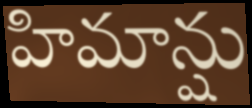
హిమాన్షు